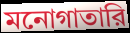
মনোগাতারি